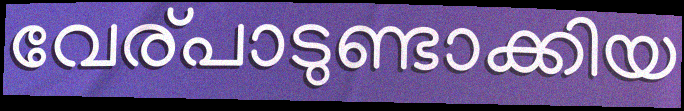
വേര്പാടുണ്ടാക്കിയ